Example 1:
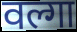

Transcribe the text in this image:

वल्गा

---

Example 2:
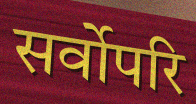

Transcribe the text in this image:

सर्वोपरि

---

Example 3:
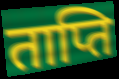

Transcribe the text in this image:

ताप्ति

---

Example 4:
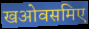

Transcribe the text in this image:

खओवसमिए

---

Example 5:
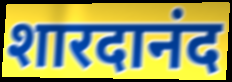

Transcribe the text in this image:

शारदानंद